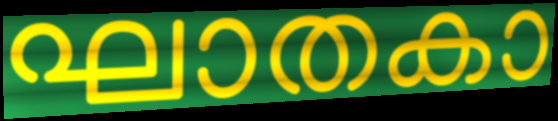
ഘാതകാ